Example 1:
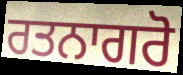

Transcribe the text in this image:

ਰਤਨਾਗਰੋ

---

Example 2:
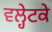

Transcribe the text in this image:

ਵਲ੍ਹੇਟਕੇ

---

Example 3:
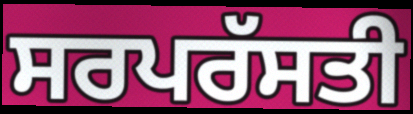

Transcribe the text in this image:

ਸਰਪਰੱਸਤੀ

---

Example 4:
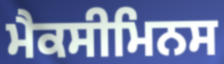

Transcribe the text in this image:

ਮੈਕਸੀਮਿਨਸ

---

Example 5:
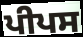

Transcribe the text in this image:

ਪੀਪਸ